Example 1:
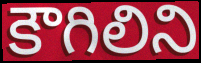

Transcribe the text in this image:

కౌగిలిని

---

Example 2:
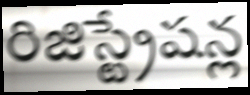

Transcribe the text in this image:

రిజిస్ట్రేషన్ల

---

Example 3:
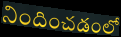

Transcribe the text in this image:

నిందించడంలో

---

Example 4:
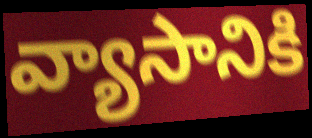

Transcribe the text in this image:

వ్యాసానికి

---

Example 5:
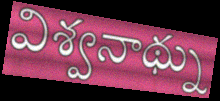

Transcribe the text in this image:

విశ్వనాథ్ను